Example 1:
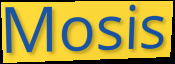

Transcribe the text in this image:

Mosis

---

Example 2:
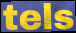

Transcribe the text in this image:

tels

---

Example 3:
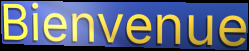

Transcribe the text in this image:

Bienvenue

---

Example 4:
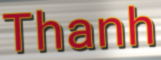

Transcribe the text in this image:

Thanh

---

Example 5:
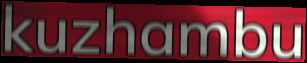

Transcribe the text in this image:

kuzhambu